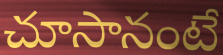
చూసానంటే